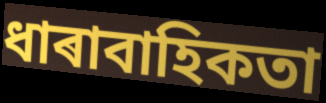
ধাৰাবাহিকতা